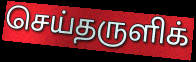
செய்தருளிக்